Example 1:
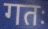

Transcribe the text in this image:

गतः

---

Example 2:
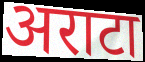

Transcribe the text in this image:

अराटा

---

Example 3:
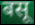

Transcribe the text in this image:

बसू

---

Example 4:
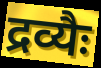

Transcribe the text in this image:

द्रव्यैः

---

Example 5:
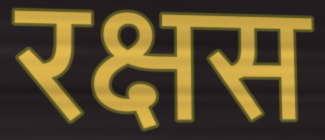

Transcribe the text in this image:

रक्षस